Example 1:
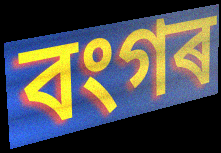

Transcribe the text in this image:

বংগৰ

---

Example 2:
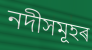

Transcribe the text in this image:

নদীসমূহৰ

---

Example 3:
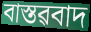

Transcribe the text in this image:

বাস্তৱবাদ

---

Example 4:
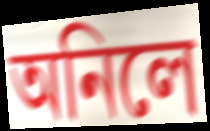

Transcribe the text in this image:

অনিলে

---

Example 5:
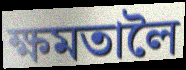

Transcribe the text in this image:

ক্ষমতালৈ